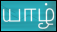
யாழ்